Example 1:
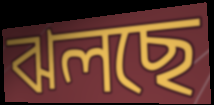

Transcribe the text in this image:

ঝলছে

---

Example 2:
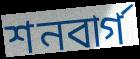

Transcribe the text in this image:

শনবার্গ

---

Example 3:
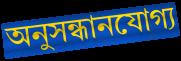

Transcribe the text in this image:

অনুসন্ধানযোগ্য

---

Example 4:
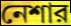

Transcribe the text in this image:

নেশার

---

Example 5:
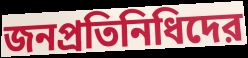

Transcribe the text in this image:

জনপ্রতিনিধিদের